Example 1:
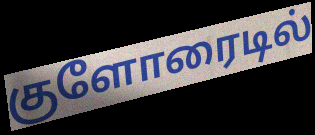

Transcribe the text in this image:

குளோரைடில்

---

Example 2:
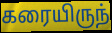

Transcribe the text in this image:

கரையிருந்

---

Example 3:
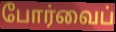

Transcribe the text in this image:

போர்வைப்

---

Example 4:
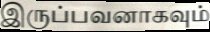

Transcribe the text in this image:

இருப்பவனாகவும்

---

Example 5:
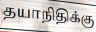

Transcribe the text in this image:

தயாநிதிக்கு